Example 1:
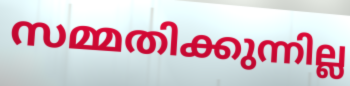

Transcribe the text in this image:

സമ്മതിക്കുന്നില്ല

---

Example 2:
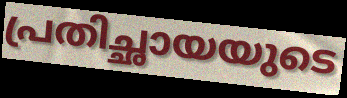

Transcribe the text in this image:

പ്രതിച്ഛായയുടെ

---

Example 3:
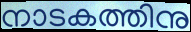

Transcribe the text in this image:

നാടകത്തിനു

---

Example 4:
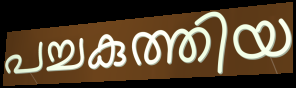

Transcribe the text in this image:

പച്ചകുത്തിയ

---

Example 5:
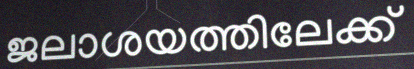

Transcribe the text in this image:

ജലാശയത്തിലേക്ക്